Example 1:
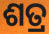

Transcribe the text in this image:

ଶତ୍ର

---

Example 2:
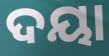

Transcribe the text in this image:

ଦୟା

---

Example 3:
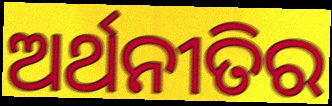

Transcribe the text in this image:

ଅର୍ଥନୀତିର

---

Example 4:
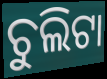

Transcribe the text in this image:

ଚୁଲିଟା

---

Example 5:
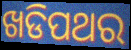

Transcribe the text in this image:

ଖଡିପଥର